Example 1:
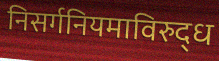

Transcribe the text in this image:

निसर्गनियमाविरुद्ध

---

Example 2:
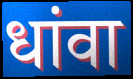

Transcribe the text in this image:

धांवा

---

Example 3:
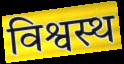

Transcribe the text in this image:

विश्वस्थ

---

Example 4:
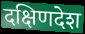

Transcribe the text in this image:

दक्षिणदेश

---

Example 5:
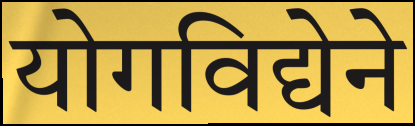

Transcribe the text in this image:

योगविद्येने